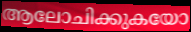
ആലോചിക്കുകയോ